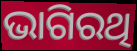
ଭାଗିରଥି